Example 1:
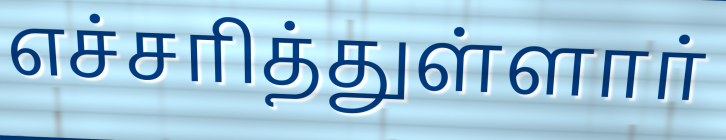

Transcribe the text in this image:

எச்சரித்துள்ளார்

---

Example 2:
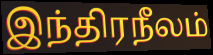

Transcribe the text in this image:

இந்திரநீலம்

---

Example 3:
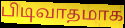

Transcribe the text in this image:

பிடிவாதமாக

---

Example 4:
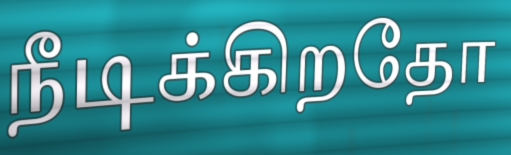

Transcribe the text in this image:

நீடிக்கிறதோ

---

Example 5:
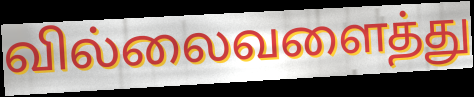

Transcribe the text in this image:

வில்லைவளைத்து